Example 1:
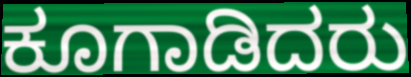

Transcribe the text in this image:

ಕೂಗಾಡಿದರು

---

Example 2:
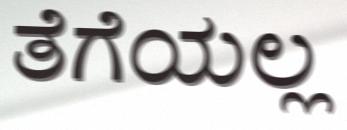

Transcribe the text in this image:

ತೆಗೆಯಲ್ಲ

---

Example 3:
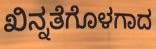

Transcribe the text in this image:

ಖಿನ್ನತೆಗೊಳಗಾದ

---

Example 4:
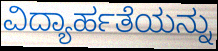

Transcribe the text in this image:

ವಿದ್ಯಾರ್ಹತೆಯನ್ನು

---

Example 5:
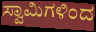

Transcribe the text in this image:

ಸ್ವಾಮಿಗಳಿಂದ